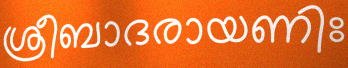
ശ്രീബാദരായണിഃ